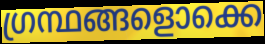
ഗ്രന്ഥങ്ങളൊക്കെ